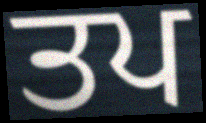
ਤਪ